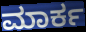
ಮಾರ್ಕ